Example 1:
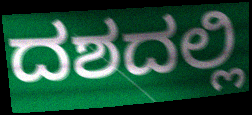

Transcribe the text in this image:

ದಶದಲ್ಲಿ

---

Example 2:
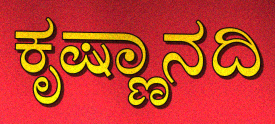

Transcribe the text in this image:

ಕೃಷ್ಣಾನದಿ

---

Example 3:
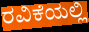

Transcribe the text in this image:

ರವಿಕೆಯಲ್ಲಿ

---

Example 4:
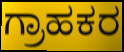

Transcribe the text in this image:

ಗ್ರಾಹಕರ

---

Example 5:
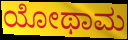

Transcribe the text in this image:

ಯೋಥಾಮ